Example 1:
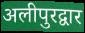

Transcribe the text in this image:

अलीपुरद्वार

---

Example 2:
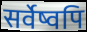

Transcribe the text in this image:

सर्वेष्वपि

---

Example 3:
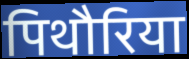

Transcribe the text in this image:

पिथौरिया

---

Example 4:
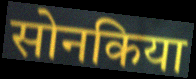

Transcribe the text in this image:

सोनकिया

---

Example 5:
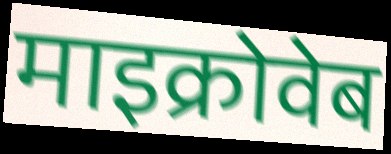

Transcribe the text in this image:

माइक्रोवेब